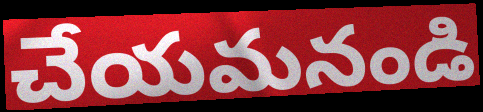
చేయమనండి